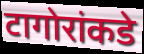
टागोरांकडे